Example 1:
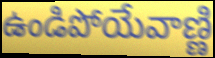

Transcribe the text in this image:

ఉండిపోయేవాణ్ణి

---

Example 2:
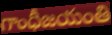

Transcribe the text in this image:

గాంధీజయంతి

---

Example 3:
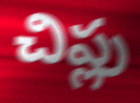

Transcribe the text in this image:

చిప్లు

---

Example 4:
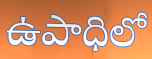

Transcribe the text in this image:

ఉపాధిలో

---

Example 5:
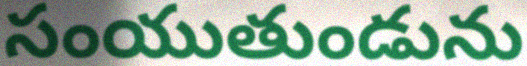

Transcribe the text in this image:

సంయుతుండును